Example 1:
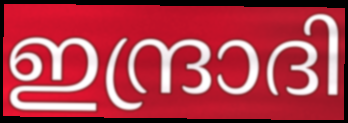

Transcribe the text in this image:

ഇന്ദ്രാദി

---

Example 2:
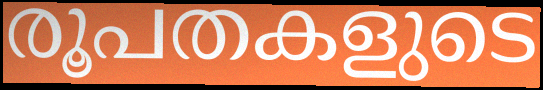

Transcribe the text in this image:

രൂപതകളുടെ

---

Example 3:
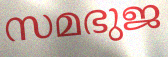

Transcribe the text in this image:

സമഭുജ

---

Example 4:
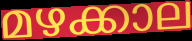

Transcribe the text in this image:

മഴക്കാല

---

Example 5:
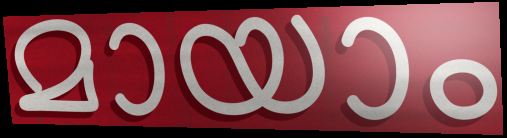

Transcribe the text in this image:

മായാം